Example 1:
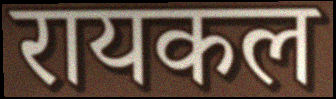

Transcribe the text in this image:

रायकल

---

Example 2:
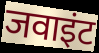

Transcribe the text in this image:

जवाइंट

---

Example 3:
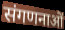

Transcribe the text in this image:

संगणनाओं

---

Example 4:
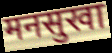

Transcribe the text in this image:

मनसुखा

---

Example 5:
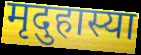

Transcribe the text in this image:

मृदुहास्या